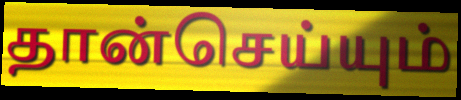
தான்செய்யும்